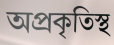
অপ্রকৃতিস্থ